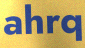
ahrq